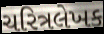
ચરિત્રલેખક